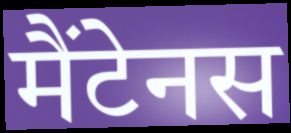
मैंटेनस